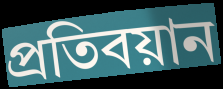
প্রতিবয়ান